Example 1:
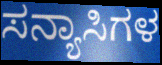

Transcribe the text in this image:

ಸನ್ಯಾಸಿಗಳ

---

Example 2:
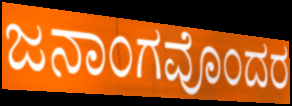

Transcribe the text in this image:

ಜನಾಂಗವೊಂದರ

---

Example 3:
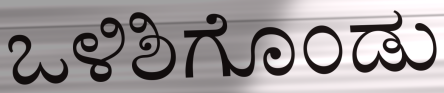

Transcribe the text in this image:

ಒಳಿಶಿಗೊಂಡು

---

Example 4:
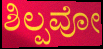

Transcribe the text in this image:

ಶಿಲ್ಪವೋ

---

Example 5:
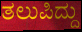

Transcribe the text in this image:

ತಲುಪಿದ್ದು